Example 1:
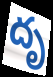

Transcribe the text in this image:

దృ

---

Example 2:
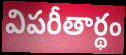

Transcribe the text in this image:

విపరీతార్థం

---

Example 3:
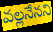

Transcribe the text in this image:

వల్లనేనని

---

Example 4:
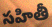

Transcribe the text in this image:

సహితీ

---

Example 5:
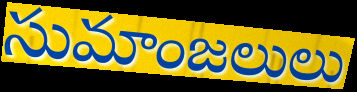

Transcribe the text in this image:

సుమాంజలులు